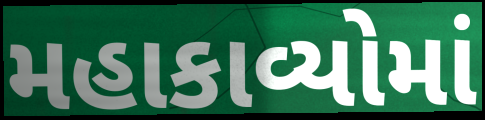
મહાકાવ્યોમાં